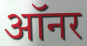
ऑनर